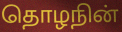
தொழநின்